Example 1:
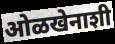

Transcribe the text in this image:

ओळखेनाशी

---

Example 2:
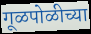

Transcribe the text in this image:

गूळपोळीच्या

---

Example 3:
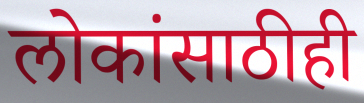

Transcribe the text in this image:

लोकांसाठीही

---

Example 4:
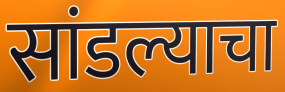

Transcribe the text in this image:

सांडल्याचा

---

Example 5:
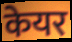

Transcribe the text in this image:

केयर